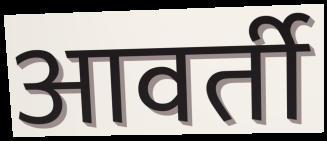
आवर्ती